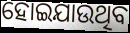
ହୋଇଯାଉଥିବ